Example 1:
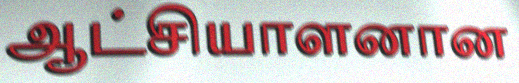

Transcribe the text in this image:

ஆட்சியாளனான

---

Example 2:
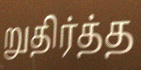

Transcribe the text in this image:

றுதிர்த்த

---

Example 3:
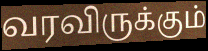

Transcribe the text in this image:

வரவிருக்கும்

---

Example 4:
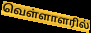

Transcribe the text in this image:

வெள்ளாளரில்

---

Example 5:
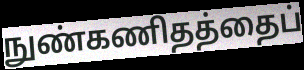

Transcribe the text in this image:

நுண்கணிதத்தைப்